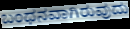
ಬಂಧನವಾಗಿರುವುದು